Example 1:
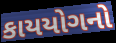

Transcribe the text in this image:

કાયયોગનો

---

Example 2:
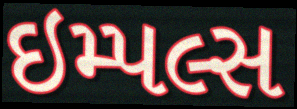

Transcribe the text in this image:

ઇમ્પલ્સ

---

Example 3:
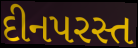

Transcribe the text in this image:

દીનપરસ્ત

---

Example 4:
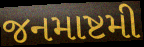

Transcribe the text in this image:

જનમાષ્ટમી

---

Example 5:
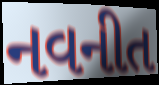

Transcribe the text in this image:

નવનીત